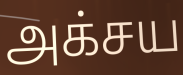
அக்சய